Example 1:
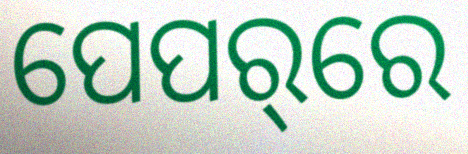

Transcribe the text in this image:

ପେପର୍‌ରେ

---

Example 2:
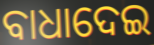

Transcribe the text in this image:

ବାଧାଦେଇ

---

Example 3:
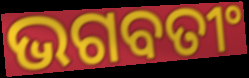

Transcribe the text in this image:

ଭଗବତୀଂ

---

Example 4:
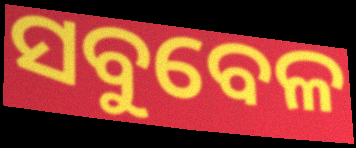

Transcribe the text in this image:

ସବୁବେଳ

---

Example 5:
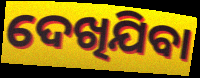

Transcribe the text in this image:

ଦେଖିଯିବା